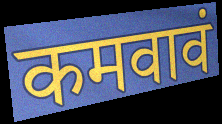
कमवावं